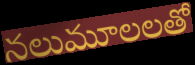
నలుమూలలతో